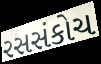
રસસંકોચ